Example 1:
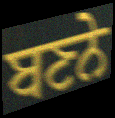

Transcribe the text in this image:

ਬਣਨੇ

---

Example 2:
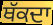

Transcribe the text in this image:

ਥੱਕਦਾ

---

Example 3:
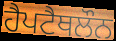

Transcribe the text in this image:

ਹੈਪਟੈਥਲੌਨ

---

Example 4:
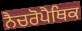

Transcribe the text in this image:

ਨੈਚਰੋਪੈਥਿਕ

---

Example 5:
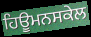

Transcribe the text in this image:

ਹਿਊਮਨਸਕੇਲ